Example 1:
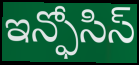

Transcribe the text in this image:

ఇన్ఫోసిస్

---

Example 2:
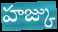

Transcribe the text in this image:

హజ్కు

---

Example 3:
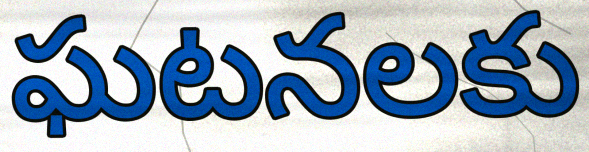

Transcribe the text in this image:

ఘటనలకు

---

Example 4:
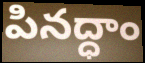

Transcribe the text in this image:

పినద్ధాం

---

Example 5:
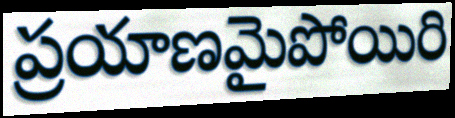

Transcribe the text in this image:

ప్రయాణమైపోయిరి